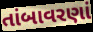
તાંબાવરણાં